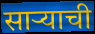
सार्‍याची